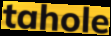
tahole